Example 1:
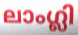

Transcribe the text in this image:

ലാംഗ്ലി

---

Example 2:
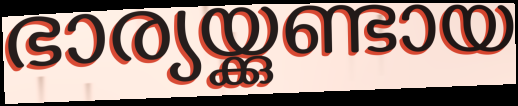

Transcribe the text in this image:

ഭാര്യയ്ക്കുണ്ടായ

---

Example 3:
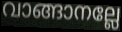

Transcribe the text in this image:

വാങ്ങാനല്ലേ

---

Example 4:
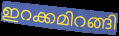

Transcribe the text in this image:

ഇറക്കമിറങ്ങി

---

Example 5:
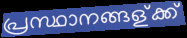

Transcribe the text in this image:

പ്രസ്ഥാനങ്ങള്ക്ക്